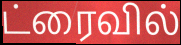
ட்ரைவில்